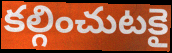
కల్గించుటకై